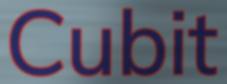
Cubit